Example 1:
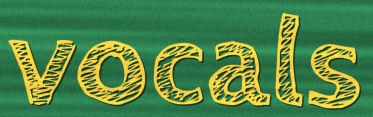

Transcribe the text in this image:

vocals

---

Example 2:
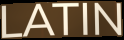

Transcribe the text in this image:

LATIN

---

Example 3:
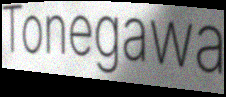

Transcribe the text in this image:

Tonegawa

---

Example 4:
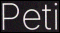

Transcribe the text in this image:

Peti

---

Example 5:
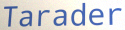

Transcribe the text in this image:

Tarader